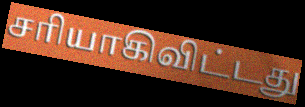
சரியாகிவிட்டது